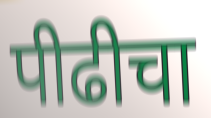
पीढीचा